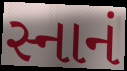
સ્નાનં